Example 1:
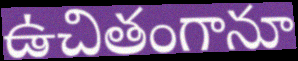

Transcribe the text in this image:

ఉచితంగానూ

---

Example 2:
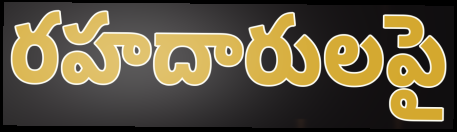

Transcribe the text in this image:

రహదారులపై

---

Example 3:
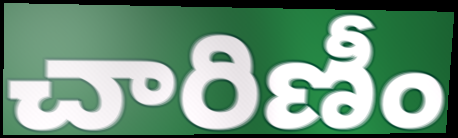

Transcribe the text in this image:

చారిణీం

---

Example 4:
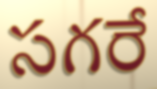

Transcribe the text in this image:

సగరే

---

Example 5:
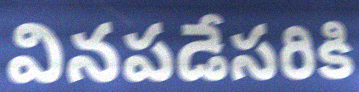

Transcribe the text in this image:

వినపడేసరికి